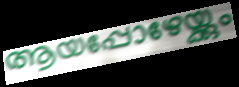
ആയപ്പോഴേയ്ക്കും